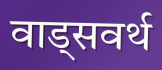
वाड्सवर्थ